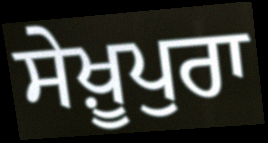
ਸੇਖ਼ੂਪੁਰਾ